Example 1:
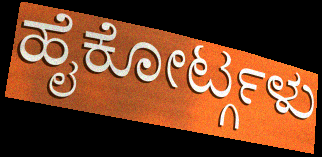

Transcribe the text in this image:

ಹೈಕೋರ್ಟ್ಗಳು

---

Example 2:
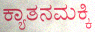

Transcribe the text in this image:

ಕ್ಯಾತನಮಕ್ಕಿ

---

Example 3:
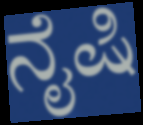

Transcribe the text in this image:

ನೈಷಿ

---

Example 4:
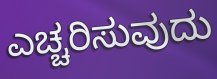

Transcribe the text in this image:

ಎಚ್ಚರಿಸುವುದು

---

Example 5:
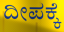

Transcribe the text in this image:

ದೀಪಕ್ಕೆ